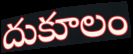
దుకూలం